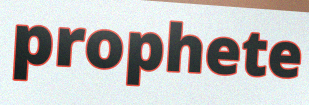
prophete